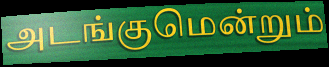
அடங்குமென்றும்